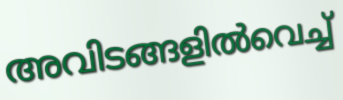
അവിടങ്ങളിൽവെച്ച്